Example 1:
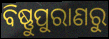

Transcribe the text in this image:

ବିଷ୍ଣୁପୁରାଣରୁ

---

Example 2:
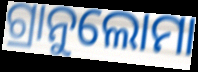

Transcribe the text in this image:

ଗ୍ରାନୁଲୋମା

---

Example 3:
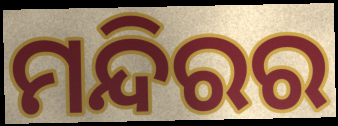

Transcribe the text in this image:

ମନ୍ଦିରର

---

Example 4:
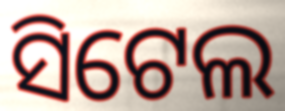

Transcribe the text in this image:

ସିଟେଲ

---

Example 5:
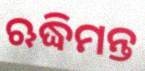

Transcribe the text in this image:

ଋଦ୍ଧିମନ୍ତ